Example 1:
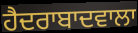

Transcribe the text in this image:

ਹੈਦਰਾਬਾਦਵਾਲਾ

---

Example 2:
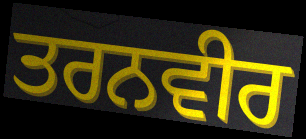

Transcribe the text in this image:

ਤਰਨਵੀਰ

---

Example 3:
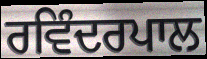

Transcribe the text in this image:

ਰਵਿੰਦਰਪਾਲ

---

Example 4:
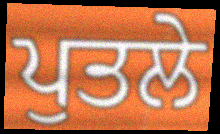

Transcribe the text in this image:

ਪੁਤਲੇ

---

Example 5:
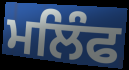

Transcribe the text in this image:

ਮਲਿੰਫ